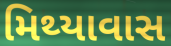
મિથ્યાવાસ